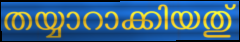
തയ്യാറാക്കിയതു്